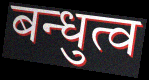
बन्धुत्व